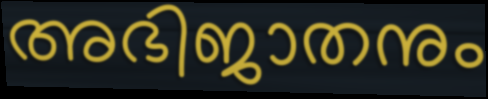
അഭിജാതനും